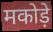
मकोड़े